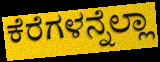
ಕೆರೆಗಳನ್ನೆಲ್ಲಾ